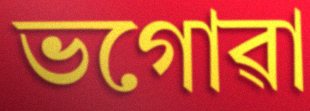
ভগোৱা